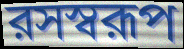
রসস্বরূপ